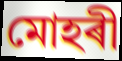
মোহৰী